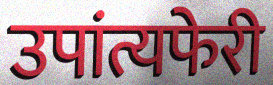
उपांत्यफेरी